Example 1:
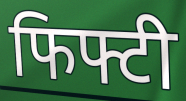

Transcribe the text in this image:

फिफ्टी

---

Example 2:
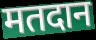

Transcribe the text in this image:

मतदान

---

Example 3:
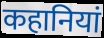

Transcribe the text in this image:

कहानियां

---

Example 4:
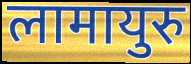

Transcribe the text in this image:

लामायुरु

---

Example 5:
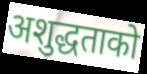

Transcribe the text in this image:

अशुद्धताको